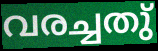
വരച്ചതു്